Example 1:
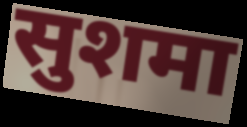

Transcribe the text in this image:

सुशमा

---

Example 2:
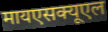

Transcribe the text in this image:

मायएसक्यूएल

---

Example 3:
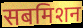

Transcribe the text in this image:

सबमिशन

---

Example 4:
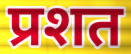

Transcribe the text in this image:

प्रशत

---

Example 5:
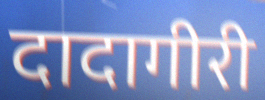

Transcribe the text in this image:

दादागीरी